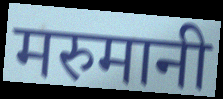
मरुमानी